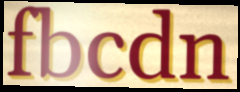
fbcdn